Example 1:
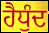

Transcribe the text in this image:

ਹੈਧੁੰਦ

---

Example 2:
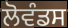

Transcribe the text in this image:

ਲੋਵੰਡਸ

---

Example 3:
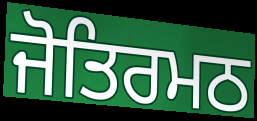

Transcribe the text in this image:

ਜੋਤਿਰਮਠ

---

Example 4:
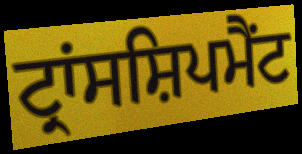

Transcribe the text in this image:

ਟ੍ਰਾਂਸਸ਼ਿਪਮੈਂਟ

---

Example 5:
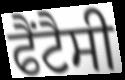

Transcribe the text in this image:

ਫੈਂਟੈਸੀ